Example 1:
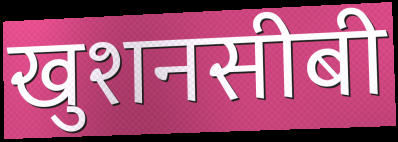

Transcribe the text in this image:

खुशनसीबी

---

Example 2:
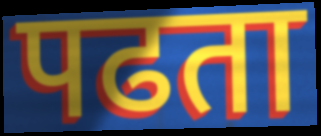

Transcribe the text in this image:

पढता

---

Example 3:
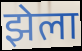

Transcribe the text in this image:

झेला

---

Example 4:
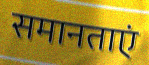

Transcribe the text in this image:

समानताएं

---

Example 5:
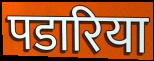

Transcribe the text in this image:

पडारिया